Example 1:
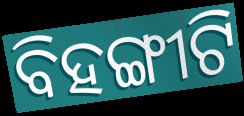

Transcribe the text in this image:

ବିହଙ୍ଗୀଟି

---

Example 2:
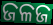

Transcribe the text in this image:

ଜଳଜ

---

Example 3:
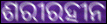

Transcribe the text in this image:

ଶରୀରହୀନ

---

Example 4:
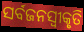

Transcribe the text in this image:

ସର୍ବଜନସ୍ୱୀକୃତି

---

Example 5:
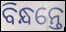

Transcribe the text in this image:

ବିନ୍ଧନ୍ତେ